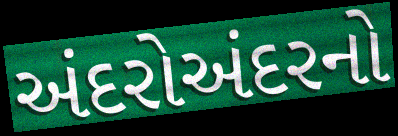
અંદરોઅંદરનો